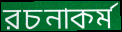
রচনাকর্ম